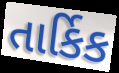
તાર્કિક